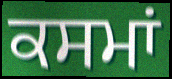
ਕਸਮਾਂ